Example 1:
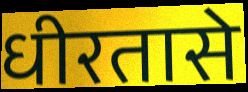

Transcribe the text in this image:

धीरतासे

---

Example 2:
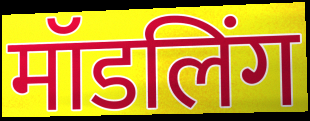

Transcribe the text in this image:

मॉडलिंग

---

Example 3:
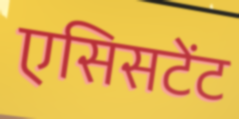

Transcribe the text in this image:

एसिसटेंट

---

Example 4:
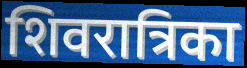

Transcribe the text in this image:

शिवरात्रिका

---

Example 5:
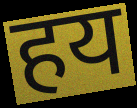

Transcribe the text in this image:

हय